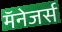
मॅनेजर्स